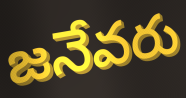
జనేవరు